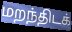
மறந்திடக்